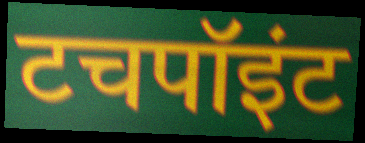
टचपॉइंट